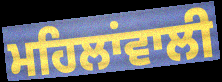
ਮਹਿਲਾਂਵਾਲੀ